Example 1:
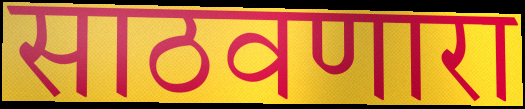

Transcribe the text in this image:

साठवणारा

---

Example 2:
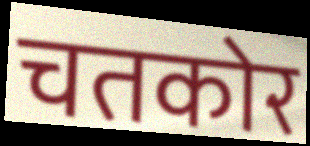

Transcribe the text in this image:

चतकोर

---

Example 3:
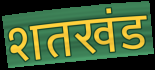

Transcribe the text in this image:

शतखंड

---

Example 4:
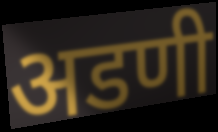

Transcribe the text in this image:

अडणी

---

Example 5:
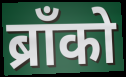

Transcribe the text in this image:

ब्राँको